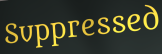
Suppressed